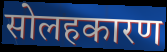
सोलहकारण